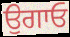
ਉਗਾਓ